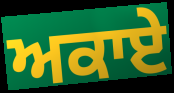
ਅਕਾਏ